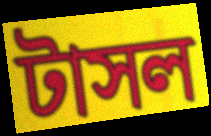
টাসল